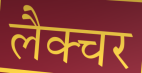
लैक्चर